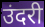
उंदरी